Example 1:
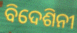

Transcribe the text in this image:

ବିଦେଶିନୀ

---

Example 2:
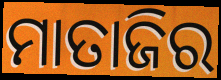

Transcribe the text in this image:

ମାତାଜିର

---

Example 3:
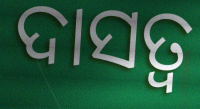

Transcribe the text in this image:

ଦାସତ୍ୱ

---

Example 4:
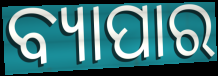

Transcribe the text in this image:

ବ୍ୟାପାର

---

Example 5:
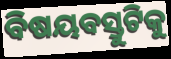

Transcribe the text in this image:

ବିଷୟବସ୍ତୁଟିକୁ